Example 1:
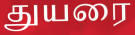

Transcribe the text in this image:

துயரை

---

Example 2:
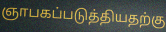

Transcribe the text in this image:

ஞாபகப்படுத்தியதற்கு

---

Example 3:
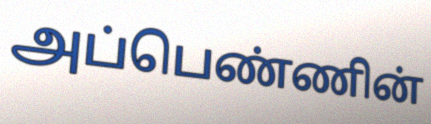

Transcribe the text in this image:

அப்பெண்ணின்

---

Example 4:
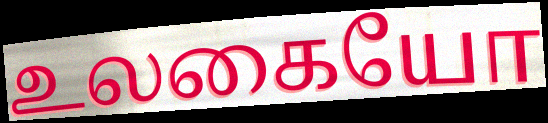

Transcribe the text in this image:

உலகையோ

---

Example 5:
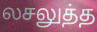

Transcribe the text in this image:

லசலுத்த